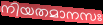
നിയതമാനസഃ